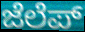
ಜೆಲೆಪ್